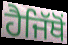
ਹੈਜਿੱਥੋਂ